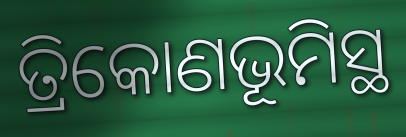
ତ୍ରିକୋଣଭୂମିସ୍ଥ